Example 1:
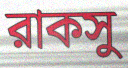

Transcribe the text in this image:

রাকসু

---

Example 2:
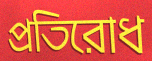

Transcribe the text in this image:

প্রতিরোধ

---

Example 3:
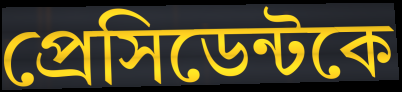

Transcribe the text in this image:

প্রেসিডেন্টকে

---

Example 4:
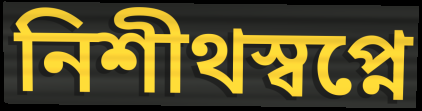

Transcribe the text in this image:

নিশীথস্বপ্নে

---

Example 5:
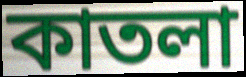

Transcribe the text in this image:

কাতলা